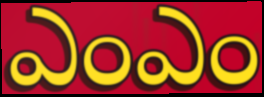
ఎంఎం